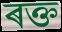
ৰক্ত